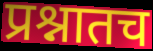
प्रश्नातच